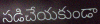
సడిచేయకుండా